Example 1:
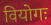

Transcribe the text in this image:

वियोगः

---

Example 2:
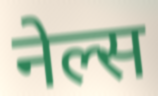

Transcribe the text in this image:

नेल्स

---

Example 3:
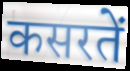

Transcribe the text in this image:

कसरतें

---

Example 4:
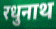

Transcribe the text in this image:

रधुनाथ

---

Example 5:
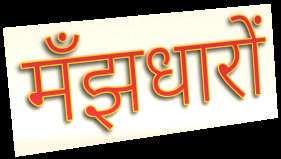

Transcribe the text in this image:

मँझधारों